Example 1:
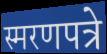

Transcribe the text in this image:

स्मरणपत्रे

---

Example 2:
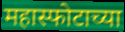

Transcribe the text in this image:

महास्फोटाच्या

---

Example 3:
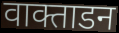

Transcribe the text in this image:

वाक्ताडन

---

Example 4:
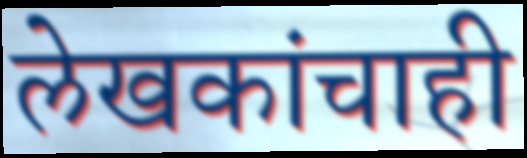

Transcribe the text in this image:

लेखकांचाही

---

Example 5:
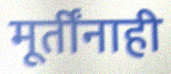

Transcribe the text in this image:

मूर्तींनाही